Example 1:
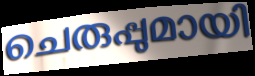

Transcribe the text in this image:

ചെരുപ്പുമായി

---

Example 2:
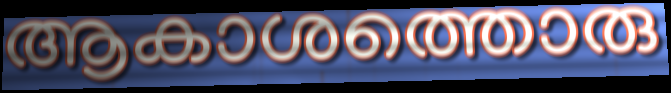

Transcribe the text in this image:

ആകാശത്തൊരു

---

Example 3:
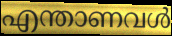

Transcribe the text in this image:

എന്താണവൾ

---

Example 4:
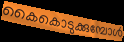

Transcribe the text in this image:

കൈകൊടുക്കുമ്പോൾ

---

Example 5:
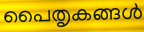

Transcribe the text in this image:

പൈതൃകങ്ങൾ